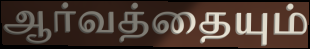
ஆர்வத்தையும்